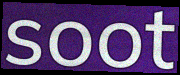
soot